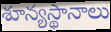
శూన్యస్థానాలు